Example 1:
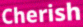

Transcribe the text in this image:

Cherish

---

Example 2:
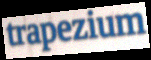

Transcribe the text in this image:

trapezium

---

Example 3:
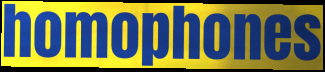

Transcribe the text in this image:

homophones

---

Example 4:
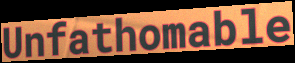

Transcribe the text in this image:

Unfathomable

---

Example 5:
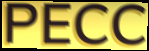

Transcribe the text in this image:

PECC